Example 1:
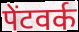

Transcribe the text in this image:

पेंटवर्क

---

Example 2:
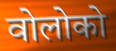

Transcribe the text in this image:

वोलोको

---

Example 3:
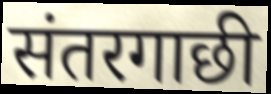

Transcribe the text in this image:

संतरगाछी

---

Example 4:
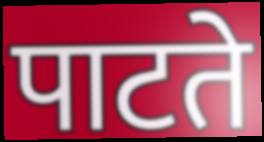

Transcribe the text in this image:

पाटते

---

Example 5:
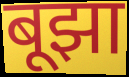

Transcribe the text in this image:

बूझा